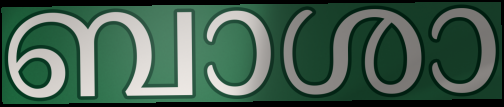
ബാശാ